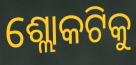
ଶ୍ଲୋକଟିକୁ